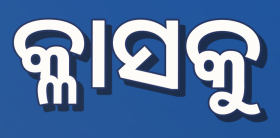
କ୍ଳାସକୁ